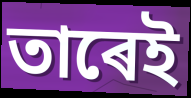
তাৰেই